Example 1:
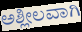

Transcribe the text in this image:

ಅಶ್ಲೀಲವಾಗಿ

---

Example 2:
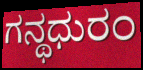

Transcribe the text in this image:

ಗನ್ಥಧುರಂ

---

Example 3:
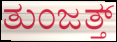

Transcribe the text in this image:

ತುಂಜತ್ತ್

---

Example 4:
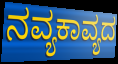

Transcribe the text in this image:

ನವ್ಯಕಾವ್ಯದ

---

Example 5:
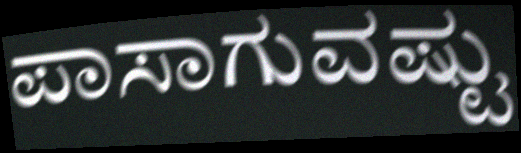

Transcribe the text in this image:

ಪಾಸಾಗುವಷ್ಟು